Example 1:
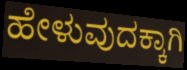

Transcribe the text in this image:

ಹೇಳುವುದಕ್ಕಾಗಿ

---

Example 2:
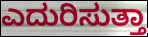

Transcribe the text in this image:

ಎದುರಿಸುತ್ತಾ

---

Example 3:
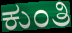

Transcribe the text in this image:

ಕುಂತಿ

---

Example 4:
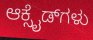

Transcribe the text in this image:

ಆಕ್ಸೈಡ್‌ಗಳು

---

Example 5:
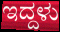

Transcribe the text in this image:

ಇದ್ದಳು